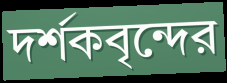
দর্শকবৃন্দের